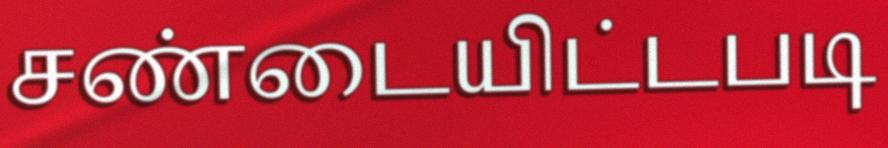
சண்டையிட்டபடி